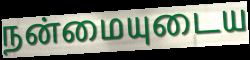
நன்மையுடைய